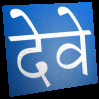
देवे